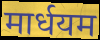
मार्धयम